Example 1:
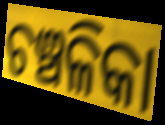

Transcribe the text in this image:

ଚଞ୍ଚଳିକା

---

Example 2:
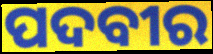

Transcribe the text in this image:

ପଦବୀର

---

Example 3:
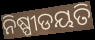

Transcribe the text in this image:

ନିଷ୍ପୀଡୟତି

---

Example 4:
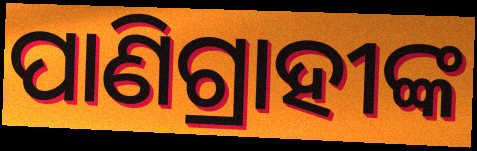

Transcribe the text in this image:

ପାଣିଗ୍ରାହୀଙ୍କ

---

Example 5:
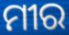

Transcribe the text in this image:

ମୀର